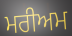
ਮਰੀਅਮ